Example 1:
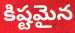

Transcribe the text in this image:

కిష్టమైన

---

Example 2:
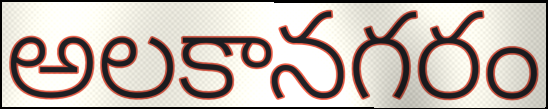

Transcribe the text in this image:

అలకానగరం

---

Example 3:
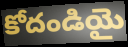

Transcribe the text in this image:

కోదండియై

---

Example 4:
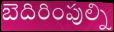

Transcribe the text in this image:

బెదిరింపుల్ని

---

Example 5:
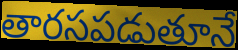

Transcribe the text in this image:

తారసపడుతూనే